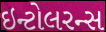
ઇન્ટોલરન્સ